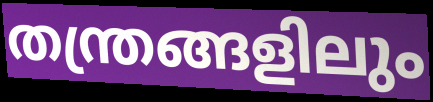
തന്ത്രങ്ങളിലും